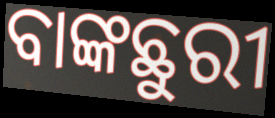
ବାଙ୍କଛୁରୀ